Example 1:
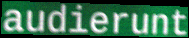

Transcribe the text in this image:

audierunt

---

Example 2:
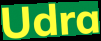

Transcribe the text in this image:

Udra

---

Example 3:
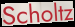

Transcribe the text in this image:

Scholtz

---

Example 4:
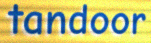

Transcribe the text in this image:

tandoor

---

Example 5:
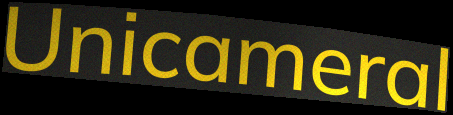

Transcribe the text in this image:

Unicameral